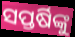
ସପ୍ତର୍ଷିଙ୍କୁ